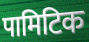
पामिटिक